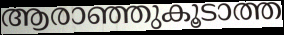
ആരാഞ്ഞുകൂടാത്ത